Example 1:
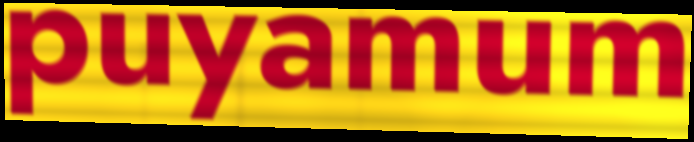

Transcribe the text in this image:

puyamum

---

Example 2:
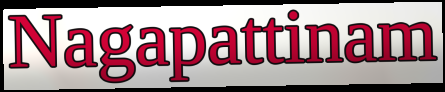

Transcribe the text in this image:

Nagapattinam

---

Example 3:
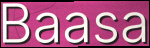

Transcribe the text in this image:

Baasa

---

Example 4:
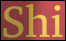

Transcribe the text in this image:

Shi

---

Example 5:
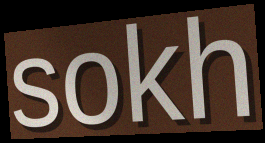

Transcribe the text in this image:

sokh